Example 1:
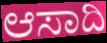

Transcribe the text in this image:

ಆಸಾದಿ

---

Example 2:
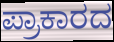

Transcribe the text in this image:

ಪ್ರಾಕಾರದ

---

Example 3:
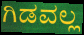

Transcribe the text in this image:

ಗಿಡವಲ್ಲ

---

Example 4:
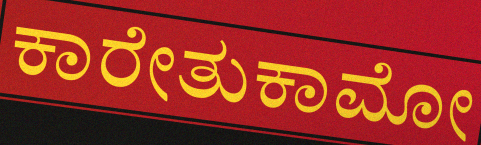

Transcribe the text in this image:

ಕಾರೇತುಕಾಮೋ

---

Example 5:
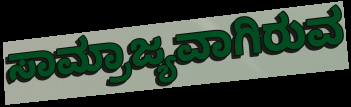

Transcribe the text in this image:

ಸಾಮ್ರಾಜ್ಯವಾಗಿರುವ